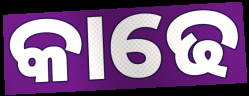
କାଢେ